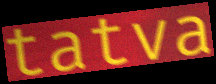
tatva